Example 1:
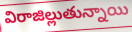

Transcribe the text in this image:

విరాజిల్లుతున్నాయి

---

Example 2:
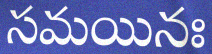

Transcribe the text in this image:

సమయినః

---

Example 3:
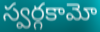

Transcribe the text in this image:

స్వర్గకామో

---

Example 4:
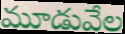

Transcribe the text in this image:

మూడువేల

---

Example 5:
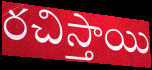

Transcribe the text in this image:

రచిస్తాయి